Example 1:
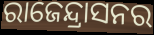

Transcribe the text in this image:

ରାଜେନ୍ଦ୍ରାସନର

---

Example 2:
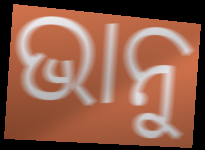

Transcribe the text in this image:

ଭାନୁ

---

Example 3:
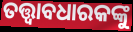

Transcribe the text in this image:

ତତ୍ତ୍ଵାବଧାରକଙ୍କୁ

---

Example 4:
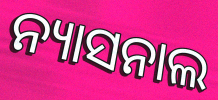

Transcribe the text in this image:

ନ୍ୟାସନାଲ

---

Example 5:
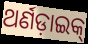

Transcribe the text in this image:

ଥର୍ଣଡ଼ାଇକ୍